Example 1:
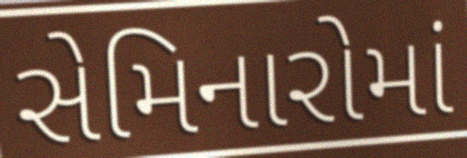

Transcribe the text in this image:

સેમિનારોમાં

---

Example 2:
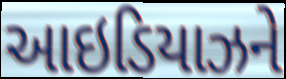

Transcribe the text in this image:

આઇડિયાઝને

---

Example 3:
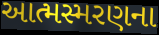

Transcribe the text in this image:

આત્મસ્મરણના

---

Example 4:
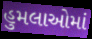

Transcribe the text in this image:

હુમલાઓમાં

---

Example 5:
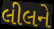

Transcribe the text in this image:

લીલને